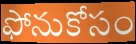
ఫోనుకోసం